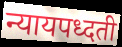
न्यायपध्दती